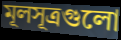
মূলসূত্রগুলো